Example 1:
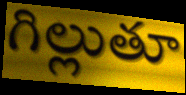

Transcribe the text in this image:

గిల్లుతూ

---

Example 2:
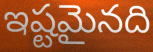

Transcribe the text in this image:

ఇష్టమైనది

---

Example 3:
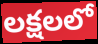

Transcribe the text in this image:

లక్షలలో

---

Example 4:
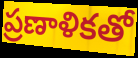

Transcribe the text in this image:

ప్రణాళికతో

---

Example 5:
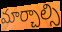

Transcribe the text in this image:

మార్చాల్సి